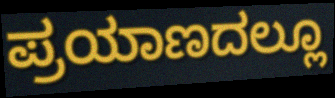
ಪ್ರಯಾಣದಲ್ಲೂ